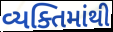
વ્યક્તિમાંથી